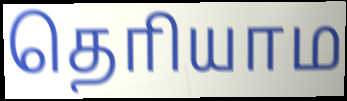
தெரியாம